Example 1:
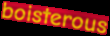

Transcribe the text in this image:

boisterous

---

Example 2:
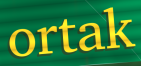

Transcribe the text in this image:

ortak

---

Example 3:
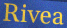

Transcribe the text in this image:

Rivea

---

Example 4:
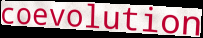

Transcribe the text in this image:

coevolution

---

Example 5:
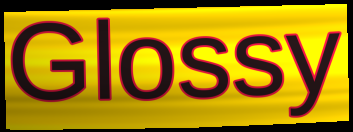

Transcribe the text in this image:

Glossy